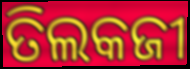
ତିଲକଜୀ